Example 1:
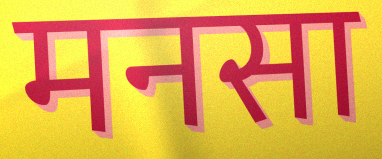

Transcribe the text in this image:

मनसा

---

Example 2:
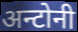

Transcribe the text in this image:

अन्टोनी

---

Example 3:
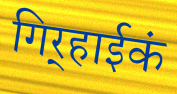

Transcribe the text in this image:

गिर्हाईकं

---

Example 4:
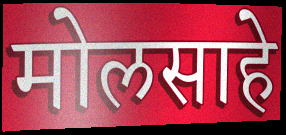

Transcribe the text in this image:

मोलसाहे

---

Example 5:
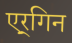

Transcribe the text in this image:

एर्गिन